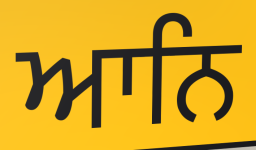
ਆਨਿ